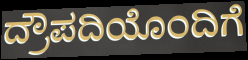
ದ್ರೌಪದಿಯೊಂದಿಗೆ